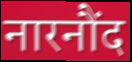
नारनौंद